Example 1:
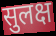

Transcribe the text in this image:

सुलक्ष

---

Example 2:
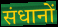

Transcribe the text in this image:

संधानों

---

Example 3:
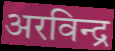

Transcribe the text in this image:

अरविन्द्र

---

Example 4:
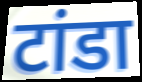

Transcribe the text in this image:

टांडा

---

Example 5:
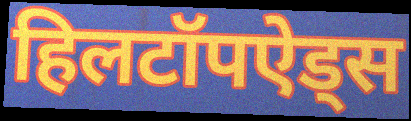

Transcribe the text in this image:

हिलटॉपऐड्स